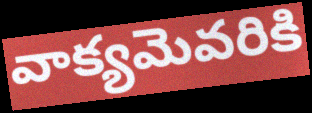
వాక్యమెవరికి